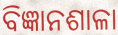
ବିଜ୍ଞାନଶାଳା